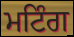
ਮਟਿੰਗ